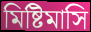
মিষ্টিমাসি